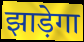
झाड़ेगा